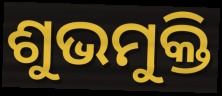
ଶୁଭମୁକ୍ତି